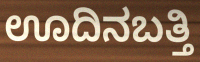
ಊದಿನಬತ್ತಿ